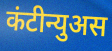
कंटीन्युअस